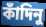
কাঁদিনু